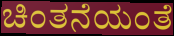
ಚಿಂತನೆಯಂತೆ